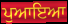
ਪੁਆਇਆ